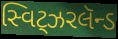
સ્વિટ્ઝરલૅન્ડ